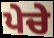
ਪੇਚੇ